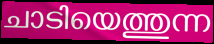
ചാടിയെത്തുന്ന